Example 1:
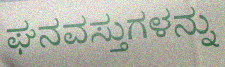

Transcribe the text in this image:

ಘನವಸ್ತುಗಳನ್ನು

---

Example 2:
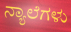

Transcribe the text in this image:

ನ್ಯಾಲೆಗಳು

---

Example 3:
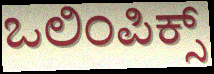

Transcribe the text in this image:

ಒಲಿಂಪಿಕ್ಸ್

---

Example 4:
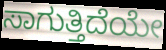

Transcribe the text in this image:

ಸಾಗುತ್ತಿದೆಯೇ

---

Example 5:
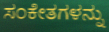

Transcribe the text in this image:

ಸಂಕೇತಗಳನ್ನು